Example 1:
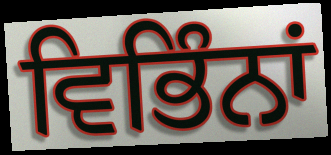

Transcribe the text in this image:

ਵਿਭਿੰਨਾਂ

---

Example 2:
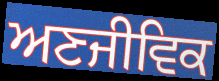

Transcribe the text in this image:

ਅਣਜੀਵਿਕ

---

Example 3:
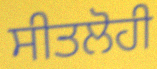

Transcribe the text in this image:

ਸੀਤਲੋਹੀ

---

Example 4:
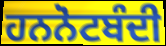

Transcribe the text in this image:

ਹਨਨੋਟਬੰਦੀ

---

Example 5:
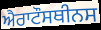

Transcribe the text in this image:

ਐਰਾਟੌਸਥੀਨਸ